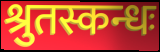
श्रुतस्कन्धः